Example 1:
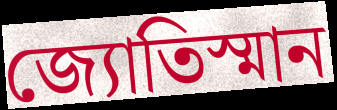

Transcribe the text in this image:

জ্যোতিস্মান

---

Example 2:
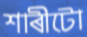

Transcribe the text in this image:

শাৰীটো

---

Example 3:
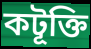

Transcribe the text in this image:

কটূক্তি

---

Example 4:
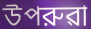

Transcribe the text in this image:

উপৰুৱা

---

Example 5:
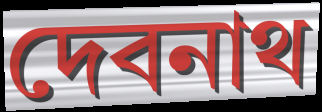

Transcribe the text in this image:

দেবনাথ